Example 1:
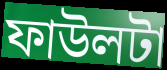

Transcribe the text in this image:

ফাউলটা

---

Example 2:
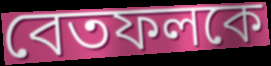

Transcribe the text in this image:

বেতফলকে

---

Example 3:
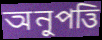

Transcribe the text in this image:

অনুপত্তি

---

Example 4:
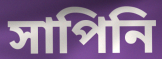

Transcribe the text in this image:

সাপিনি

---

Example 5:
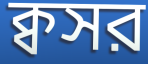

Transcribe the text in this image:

ক্বসর